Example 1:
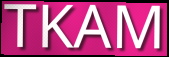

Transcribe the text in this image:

TKAM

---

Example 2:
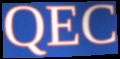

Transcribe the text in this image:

QEC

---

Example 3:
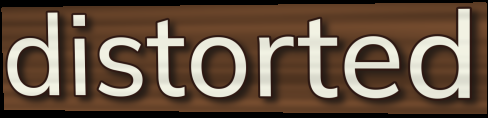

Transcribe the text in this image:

distorted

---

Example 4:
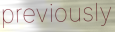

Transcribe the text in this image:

previously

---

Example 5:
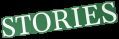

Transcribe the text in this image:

STORIES